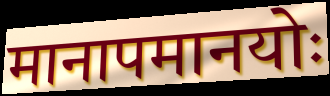
मानापमानयोः